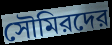
সৌমিরদের